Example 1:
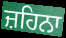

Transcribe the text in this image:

ਜ਼ਹਿਨਾ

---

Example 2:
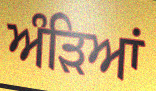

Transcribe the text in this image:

ਅੰੜਿਆਂ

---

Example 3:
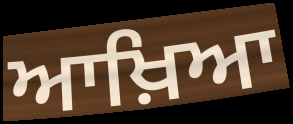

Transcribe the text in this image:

ਆਖ਼ਿਆ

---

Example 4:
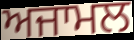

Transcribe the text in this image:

ਅਜਾਮਲ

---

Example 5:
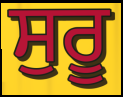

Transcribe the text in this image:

ਸੁਰੂ